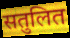
सतुलित